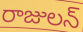
రాజులన్